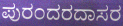
ಪುರಂದರದಾಸರ